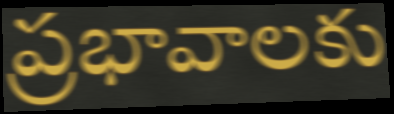
ప్రభావాలకు